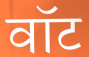
वॉट